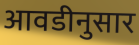
आवडीनुसार